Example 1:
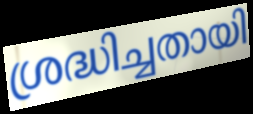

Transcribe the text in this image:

ശ്രദ്ധിച്ചതായി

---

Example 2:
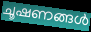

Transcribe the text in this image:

ചൂഷണങ്ങൾ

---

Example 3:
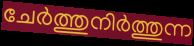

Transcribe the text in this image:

ചേർത്തുനിർത്തുന്ന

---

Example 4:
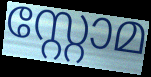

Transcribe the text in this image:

സ്റ്റോമ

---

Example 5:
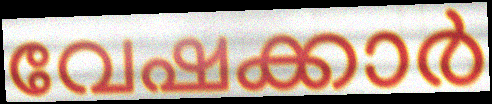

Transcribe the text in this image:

വേഷക്കാർ